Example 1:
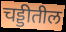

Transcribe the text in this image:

चड्डीतील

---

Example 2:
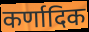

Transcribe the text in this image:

कर्णादिक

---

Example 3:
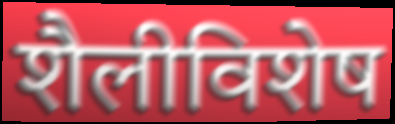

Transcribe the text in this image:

शैलीविशेष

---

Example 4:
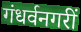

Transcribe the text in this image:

गंधर्वनगरीं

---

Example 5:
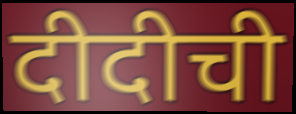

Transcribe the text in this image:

दीदीची